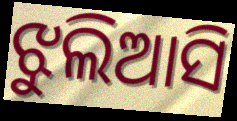
ଝୁଲିଆସି